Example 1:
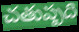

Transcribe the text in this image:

చతుష్పది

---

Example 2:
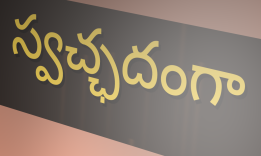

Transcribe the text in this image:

స్వచ్ఛదంగా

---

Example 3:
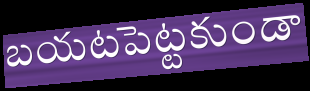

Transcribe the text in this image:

బయటపెట్టకుండా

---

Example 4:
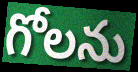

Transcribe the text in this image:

గోలను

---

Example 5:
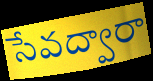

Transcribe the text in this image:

సేవద్వారా